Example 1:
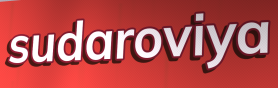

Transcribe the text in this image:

sudaroviya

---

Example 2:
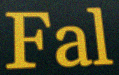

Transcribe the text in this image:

Fal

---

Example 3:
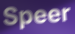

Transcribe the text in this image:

Speer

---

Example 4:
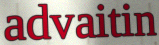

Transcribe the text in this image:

advaitin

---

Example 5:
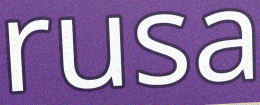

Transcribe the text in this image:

rusa